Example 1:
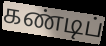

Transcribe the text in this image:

கண்டிப்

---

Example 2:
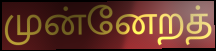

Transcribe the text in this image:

முன்னேறத்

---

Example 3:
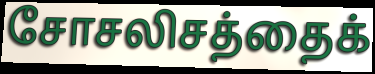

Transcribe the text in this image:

சோசலிசத்தைக்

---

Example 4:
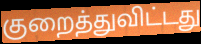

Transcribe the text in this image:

குறைத்துவிட்டது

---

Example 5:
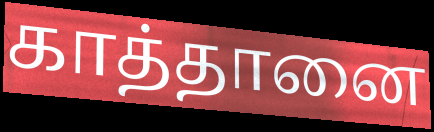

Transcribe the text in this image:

காத்தானை